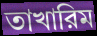
তাখারিম